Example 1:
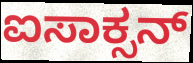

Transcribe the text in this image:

ಐಸಾಕ್ಸನ್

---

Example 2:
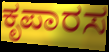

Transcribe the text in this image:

ಕೃಪಾರಸ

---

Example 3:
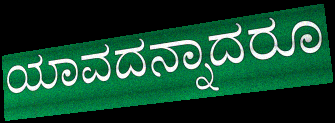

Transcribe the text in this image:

ಯಾವದನ್ನಾದರೂ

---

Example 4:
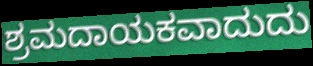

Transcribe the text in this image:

ಶ್ರಮದಾಯಕವಾದುದು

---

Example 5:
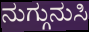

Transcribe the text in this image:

ನುಗ್ಗುನುಸಿ